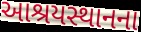
આશ્રયસ્થાનના